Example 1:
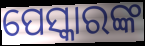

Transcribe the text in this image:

ପେସ୍କାରଙ୍କ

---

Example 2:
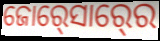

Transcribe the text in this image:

ଜୋର୍‍ସୋର୍‍ରେ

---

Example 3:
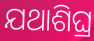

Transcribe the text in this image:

ଯଥାଶିଘ୍ର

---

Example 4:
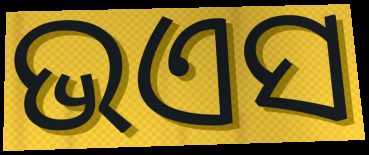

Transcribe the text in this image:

ଭଏସ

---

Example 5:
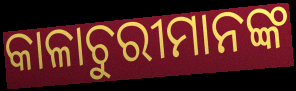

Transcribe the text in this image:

କାଳାଚୁରୀମାନଙ୍କ